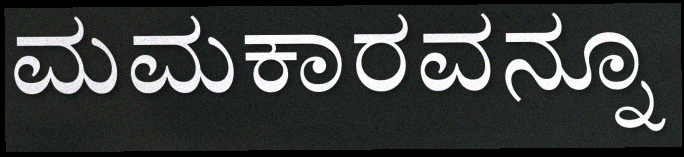
ಮಮಕಾರವನ್ನೂ